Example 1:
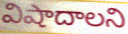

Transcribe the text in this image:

విషాదాలని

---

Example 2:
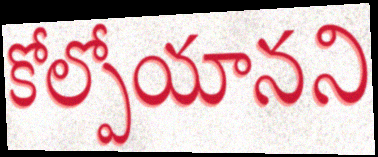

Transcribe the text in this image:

కోల్పోయానని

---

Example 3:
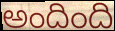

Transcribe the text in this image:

అందింది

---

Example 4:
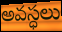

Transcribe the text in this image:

అవస్ధలు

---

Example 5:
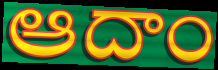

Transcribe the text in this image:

ఆదాం